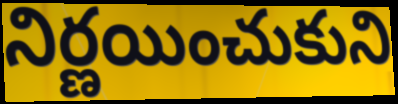
నిర్ణయించుకుని